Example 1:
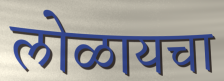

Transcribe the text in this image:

लोळायचा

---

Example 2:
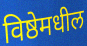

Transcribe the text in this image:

विष्ठेमधील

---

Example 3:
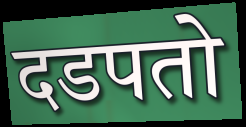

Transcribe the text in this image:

दडपतो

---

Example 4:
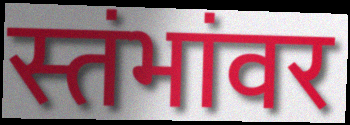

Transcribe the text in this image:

स्तंभांवर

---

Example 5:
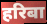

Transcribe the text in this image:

हरिबा